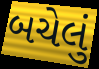
બચેલું